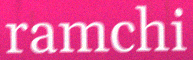
ramchi